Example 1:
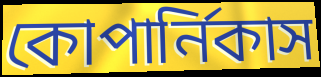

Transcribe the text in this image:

কোপার্নিকাস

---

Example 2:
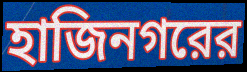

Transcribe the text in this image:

হাজিনগরের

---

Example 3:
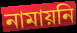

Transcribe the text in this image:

নামায়নি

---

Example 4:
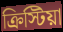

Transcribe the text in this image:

ক্রিস্টিয়া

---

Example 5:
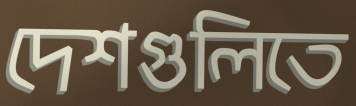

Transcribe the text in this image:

দেশগুলিতে